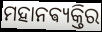
ମହାନଵ୍ୟକ୍ତିର